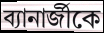
ব্যানার্জীকে